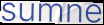
sumne